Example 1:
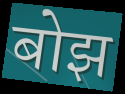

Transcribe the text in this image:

बोझ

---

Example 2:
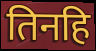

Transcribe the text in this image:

तिनहि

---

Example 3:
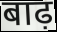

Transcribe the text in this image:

बाढ़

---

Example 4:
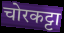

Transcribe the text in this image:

चोरकट्टा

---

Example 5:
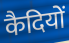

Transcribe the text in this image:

कैदियों